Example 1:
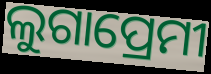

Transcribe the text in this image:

ଲୁଗାପ୍ରେମୀ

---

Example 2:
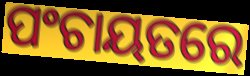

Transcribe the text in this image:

ପଂଚାୟତରେ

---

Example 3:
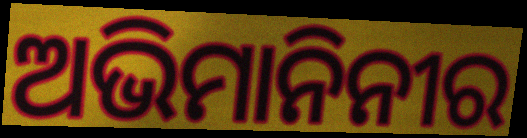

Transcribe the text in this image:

ଅଭିମାନିନୀର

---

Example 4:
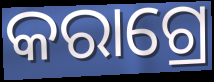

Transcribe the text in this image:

କରାଗ୍ରେ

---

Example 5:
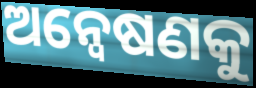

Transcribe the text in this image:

ଅନ୍ବେଷଣକୁ